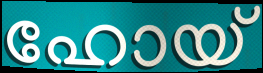
ഹോയ്